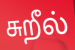
சுறீல்